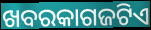
ଖବରକାଗଜଟିଏ